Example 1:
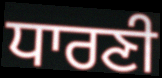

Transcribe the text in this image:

ਧਾਰਣੀ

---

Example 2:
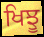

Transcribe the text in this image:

ਖਿਝੂ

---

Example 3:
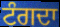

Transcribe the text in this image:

ਟੰਗਦਾ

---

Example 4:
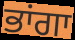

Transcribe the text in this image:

ਭਾਂਗਾ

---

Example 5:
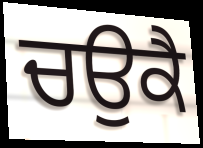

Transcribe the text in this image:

ਚਉਕੈ